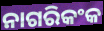
ନାଗରିକଂକ